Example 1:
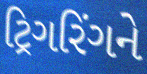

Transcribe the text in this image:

ટ્રિગરિંગને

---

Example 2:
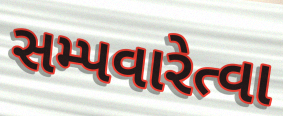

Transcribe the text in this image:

સમ્પવારેત્વા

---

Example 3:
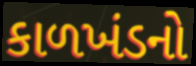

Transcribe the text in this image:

કાળખંડનો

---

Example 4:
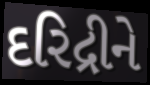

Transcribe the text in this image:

દરિદ્રીને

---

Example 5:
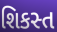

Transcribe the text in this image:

શિકસ્ત